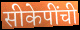
सीकेपींची